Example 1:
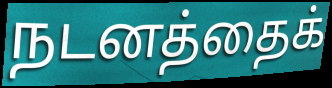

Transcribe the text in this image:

நடனத்தைக்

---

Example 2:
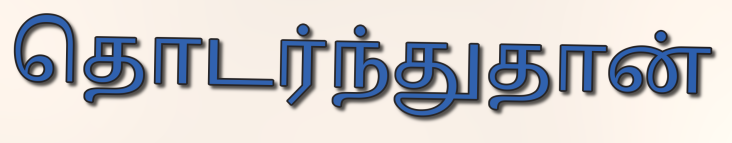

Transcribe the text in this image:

தொடர்ந்துதான்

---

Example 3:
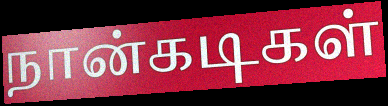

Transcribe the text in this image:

நான்கடிகள்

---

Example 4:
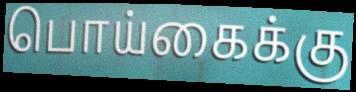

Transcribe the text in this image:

பொய்கைக்கு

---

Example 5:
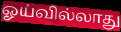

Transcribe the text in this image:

ஓய்வில்லாது